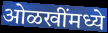
ओळखींमध्ये